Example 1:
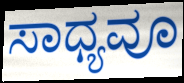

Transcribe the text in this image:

ಸಾಧ್ಯವೂ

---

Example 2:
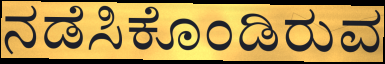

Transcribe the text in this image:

ನಡೆಸಿಕೊಂಡಿರುವ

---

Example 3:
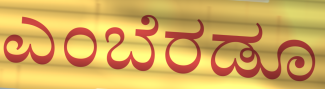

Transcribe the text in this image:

ಎಂಬೆರಡೂ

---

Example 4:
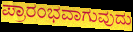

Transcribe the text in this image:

ಪ್ರಾರಂಭವಾಗುವುದು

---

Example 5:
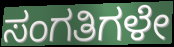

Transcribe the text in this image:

ಸಂಗತಿಗಳೇ